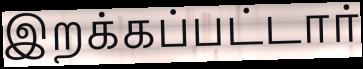
இறக்கப்பட்டார்